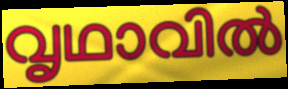
വൃഥാവിൽ